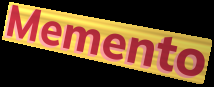
Memento